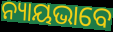
ନ୍ୟାୟଭାବେ